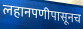
लहानपणीपासूनच